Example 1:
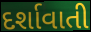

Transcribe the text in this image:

દર્શાવાતી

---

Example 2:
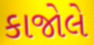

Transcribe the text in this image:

કાજોલે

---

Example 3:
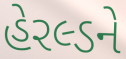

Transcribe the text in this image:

હેરલ્ડને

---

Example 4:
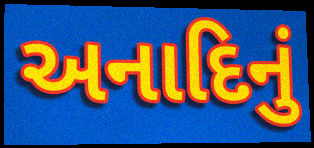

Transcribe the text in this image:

અનાદિનું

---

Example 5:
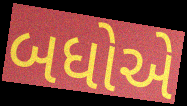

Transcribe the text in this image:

બધોએ